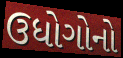
ઉધોગોનો